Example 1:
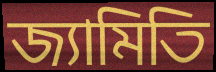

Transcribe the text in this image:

জ্যামিতি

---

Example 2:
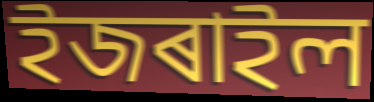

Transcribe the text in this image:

ইজৰাইল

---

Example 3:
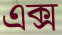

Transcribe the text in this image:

এক্স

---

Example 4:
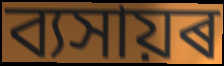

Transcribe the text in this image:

ব্যসায়ৰ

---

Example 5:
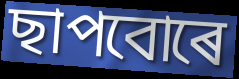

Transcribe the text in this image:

ছাপবোৰে